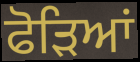
ਫੋੜਿਆਂ